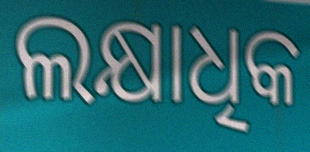
ଲକ୍ଷାଧିକ